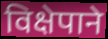
विक्षेपाने